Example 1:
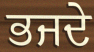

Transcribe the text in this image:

ਭਜਦੇ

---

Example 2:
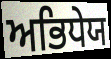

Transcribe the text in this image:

ਅਭਿਧੇਯ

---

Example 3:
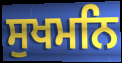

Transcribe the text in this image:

ਸੁਖਮਨਿ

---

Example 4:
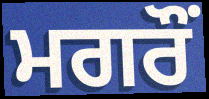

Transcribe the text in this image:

ਮਗਰੌਂ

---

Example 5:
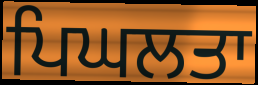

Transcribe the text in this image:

ਪਿਘਲਤਾ